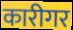
कारीगर